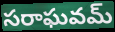
సరాఘవమ్